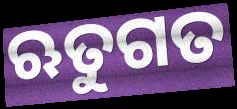
ଋତୁଗତ